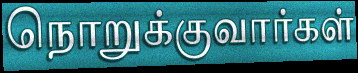
நொறுக்குவார்கள்